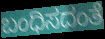
ಬಂಧಿಸದಂತೆ